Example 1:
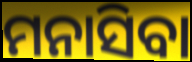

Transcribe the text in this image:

ମନାସିବା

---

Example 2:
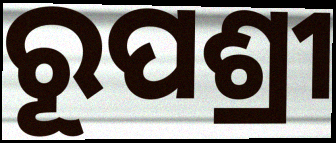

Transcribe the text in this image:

ରୂପଶ୍ରୀ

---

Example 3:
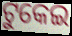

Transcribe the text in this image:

ଟୁକେଇ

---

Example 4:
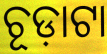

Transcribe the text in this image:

ଚୂଡ଼ାଟା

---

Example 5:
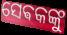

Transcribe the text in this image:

ସେଵକଙ୍କୁ